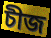
চীজ